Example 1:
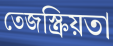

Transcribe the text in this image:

তেজস্ক্রিয়তা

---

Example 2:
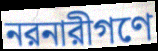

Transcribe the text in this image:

নরনারীগণে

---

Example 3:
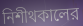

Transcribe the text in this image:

নিশীথকালের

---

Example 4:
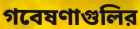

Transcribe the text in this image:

গবেষণাগুলির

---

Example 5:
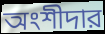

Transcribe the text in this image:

অংশীদার